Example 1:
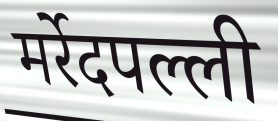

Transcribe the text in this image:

मर्रेदपल्ली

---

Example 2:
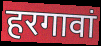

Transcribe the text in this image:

हरगावां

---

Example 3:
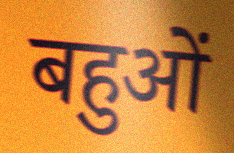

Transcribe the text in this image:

बहुओं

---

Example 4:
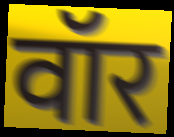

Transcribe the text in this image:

वॉर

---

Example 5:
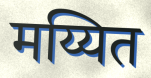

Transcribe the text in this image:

मय्यित